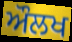
ਔਲਖ